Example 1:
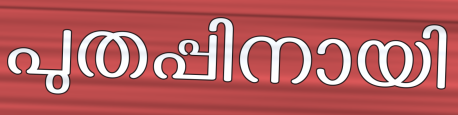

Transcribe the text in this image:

പുതപ്പിനായി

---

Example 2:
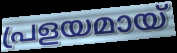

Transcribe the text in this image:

പ്രളയമായ്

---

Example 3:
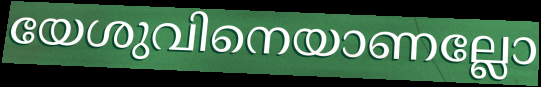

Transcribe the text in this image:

യേശുവിനെയാണല്ലോ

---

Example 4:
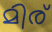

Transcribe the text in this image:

മിര്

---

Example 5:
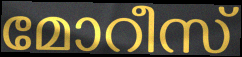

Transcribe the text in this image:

മോറീസ്